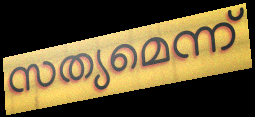
സത്യമെന്ന്